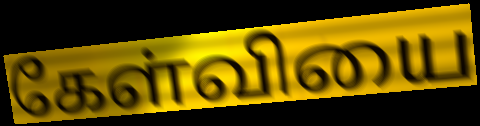
கேள்வியை